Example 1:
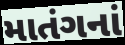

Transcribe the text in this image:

માતંગનાં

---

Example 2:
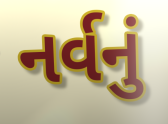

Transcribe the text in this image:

નર્વનું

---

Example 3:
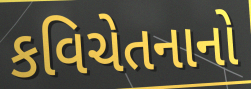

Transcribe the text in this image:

કવિચેતનાનો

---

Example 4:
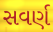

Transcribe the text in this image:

સવર્ણ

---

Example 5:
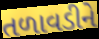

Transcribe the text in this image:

તળાવડીને